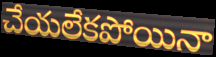
చేయలేకపోయినా